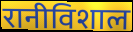
रानीविशाल